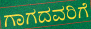
ಗಾಗದವರಿಗೆ